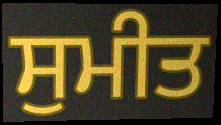
ਸੁਮੀਤ